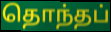
தொந்தப்